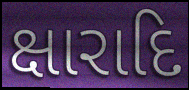
ક્ષારાદિ